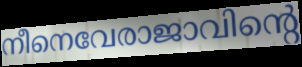
നീനെവേരാജാവിന്റെ